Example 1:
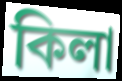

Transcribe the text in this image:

কিলা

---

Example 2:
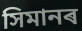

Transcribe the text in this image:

সিমানৰ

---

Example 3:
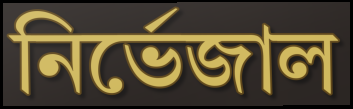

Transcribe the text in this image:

নিৰ্ভেজাল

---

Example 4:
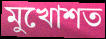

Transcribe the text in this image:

মুখোশত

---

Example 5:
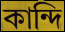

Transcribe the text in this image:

কান্দি